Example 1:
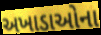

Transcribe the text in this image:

અખાડાઓના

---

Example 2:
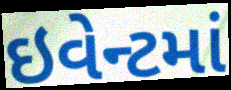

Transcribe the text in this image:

ઇવેન્ટમાં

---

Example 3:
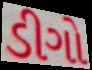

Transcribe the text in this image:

ડીગો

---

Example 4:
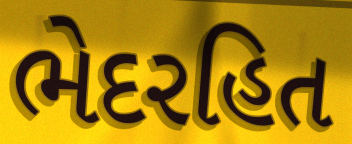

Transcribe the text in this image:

ભેદરહિત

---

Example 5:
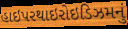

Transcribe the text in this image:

હાઇપરથાઇરોઇડિઝમનું